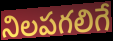
నిలపగలిగే